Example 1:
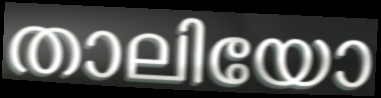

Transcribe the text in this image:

താലിയോ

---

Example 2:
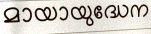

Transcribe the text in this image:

മായായുദ്ധേന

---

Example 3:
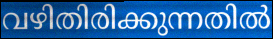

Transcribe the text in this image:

വഴിതിരിക്കുന്നതിൽ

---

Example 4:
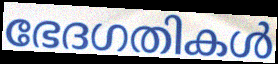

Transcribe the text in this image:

ഭേദഗതികൾ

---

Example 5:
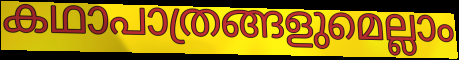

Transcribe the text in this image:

കഥാപാത്രങ്ങളുമെല്ലാം